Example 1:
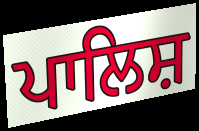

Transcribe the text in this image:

ਪਾਲਿਸ਼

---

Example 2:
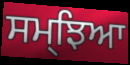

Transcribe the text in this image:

ਸਮ੍ਝਿਆ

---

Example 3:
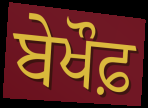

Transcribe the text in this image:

ਬੇਖੌਫ਼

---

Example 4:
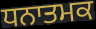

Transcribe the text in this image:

ਧਨਾਤਮਕ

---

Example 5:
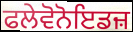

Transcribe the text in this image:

ਫਲੇਵੋਨੋਇਡਜ਼